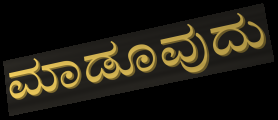
ಮಾಡೂವುದು